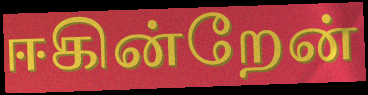
ஈகின்றேன்